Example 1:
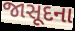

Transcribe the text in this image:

જાસૂદના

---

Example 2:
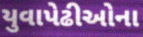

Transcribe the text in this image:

યુવાપેઢીઓના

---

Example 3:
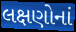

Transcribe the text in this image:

લક્ષણોનાં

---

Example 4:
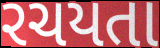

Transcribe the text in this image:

રચયતા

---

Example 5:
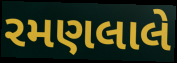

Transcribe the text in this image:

રમણલાલે